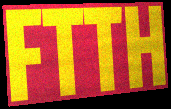
FTTH